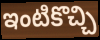
ఇంటికొచ్చి